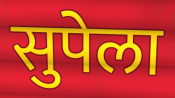
सुपेला